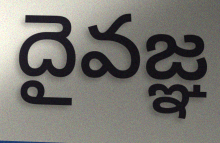
దైవజ్ఞ